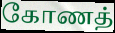
கோணத்